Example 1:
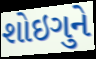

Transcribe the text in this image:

શોઇગુને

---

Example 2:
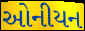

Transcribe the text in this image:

ઓનીયન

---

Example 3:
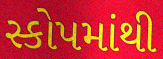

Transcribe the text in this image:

સ્કોપમાંથી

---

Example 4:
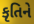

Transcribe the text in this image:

કૃતિને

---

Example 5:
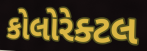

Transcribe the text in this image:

કોલોરેક્ટલ